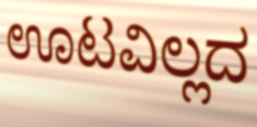
ಊಟವಿಲ್ಲದ